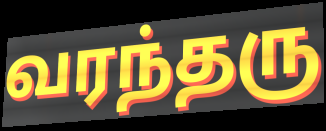
வரந்தரு